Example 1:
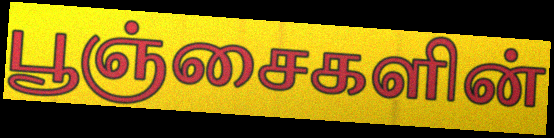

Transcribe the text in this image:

பூஞ்சைகளின்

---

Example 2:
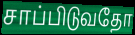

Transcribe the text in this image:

சாப்பிடுவதோ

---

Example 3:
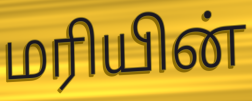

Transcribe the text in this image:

மரியின்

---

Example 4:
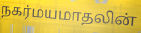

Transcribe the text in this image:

நகர்மயமாதலின்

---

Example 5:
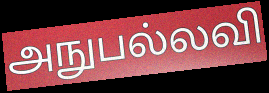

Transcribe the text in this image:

அநுபல்லவி